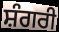
ਸ਼ੰਗਰੀ